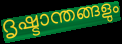
ദൃഷ്ടാന്തങ്ങളും